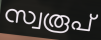
സ്വരൂപ്